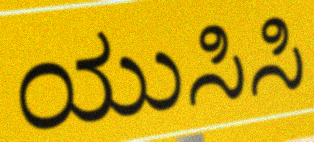
ಯುಸಿಸಿ